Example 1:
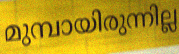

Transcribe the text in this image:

മുമ്പായിരുന്നില്ല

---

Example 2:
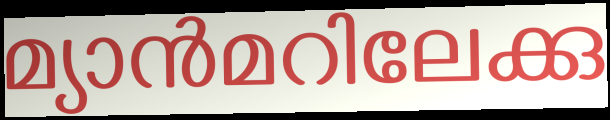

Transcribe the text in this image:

മ്യാൻമറിലേക്കു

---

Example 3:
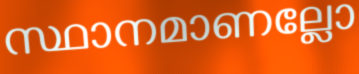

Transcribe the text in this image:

സ്ഥാനമാണല്ലോ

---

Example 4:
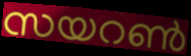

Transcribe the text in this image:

സയറൺ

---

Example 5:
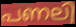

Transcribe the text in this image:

പണലി